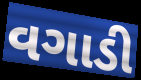
વગાડી